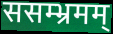
ससम्भ्रमम्